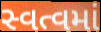
સ્વત્વમાં